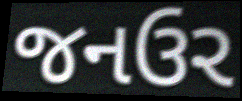
જનઉર